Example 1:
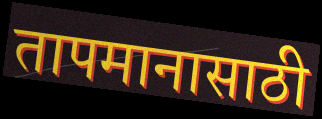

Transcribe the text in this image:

तापमानासाठी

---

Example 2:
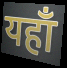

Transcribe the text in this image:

यहाँ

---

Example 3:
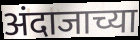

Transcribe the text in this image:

अंदाजाच्या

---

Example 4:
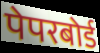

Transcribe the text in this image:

पेपरबोर्ड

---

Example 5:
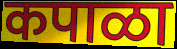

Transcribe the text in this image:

कपाळा